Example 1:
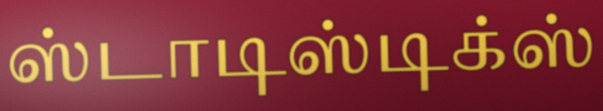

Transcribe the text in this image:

ஸ்டாடிஸ்டிக்ஸ்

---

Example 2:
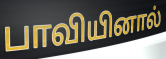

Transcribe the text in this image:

பாவியினால்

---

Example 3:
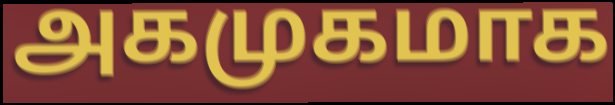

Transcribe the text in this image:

அகமுகமாக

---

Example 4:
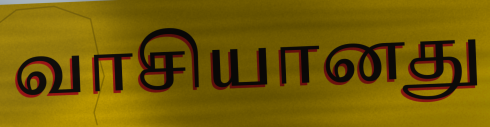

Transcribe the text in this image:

வாசியானது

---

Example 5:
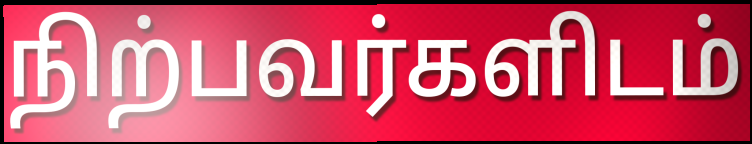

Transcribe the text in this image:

நிற்பவர்களிடம்